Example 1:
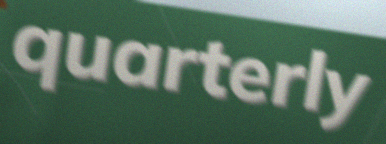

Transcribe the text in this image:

quarterly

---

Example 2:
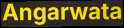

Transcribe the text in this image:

Angarwata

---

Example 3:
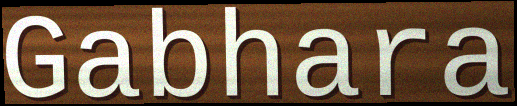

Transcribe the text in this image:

Gabhara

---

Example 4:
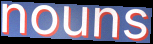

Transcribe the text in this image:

nouns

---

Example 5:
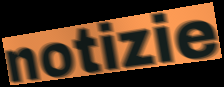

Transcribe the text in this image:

notizie